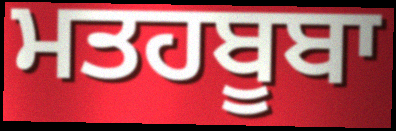
ਮਤਹਬੂਬਾ